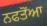
ਨਫਤੋਂਆ